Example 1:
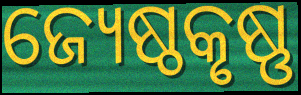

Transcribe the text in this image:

ଜ୍ୟେଷ୍ଠକୃଷ୍ଣ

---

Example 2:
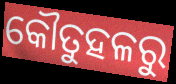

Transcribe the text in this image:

କୌତୁହଳରୁ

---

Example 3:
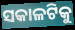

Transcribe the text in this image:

ସକାଳଟିକୁ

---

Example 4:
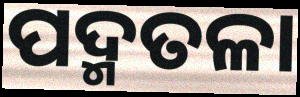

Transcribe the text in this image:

ପଦ୍ମତଳା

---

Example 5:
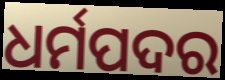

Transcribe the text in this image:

ଧର୍ମପଦର